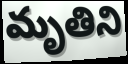
మృతిని